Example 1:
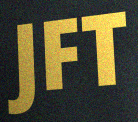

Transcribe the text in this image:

JFT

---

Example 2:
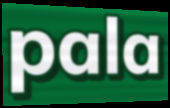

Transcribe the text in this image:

pala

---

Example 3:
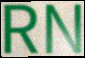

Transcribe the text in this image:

RN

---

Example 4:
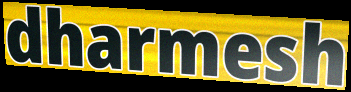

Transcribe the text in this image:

dharmesh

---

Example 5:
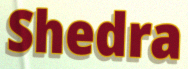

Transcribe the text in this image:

Shedra